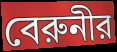
বেরুনীর